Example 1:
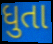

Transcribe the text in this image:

ધુતા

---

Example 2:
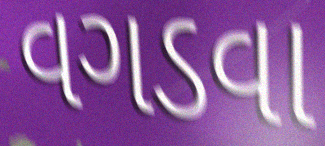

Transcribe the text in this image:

વગડવા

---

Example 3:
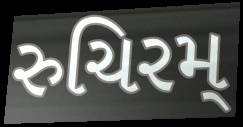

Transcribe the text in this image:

રુચિરમ્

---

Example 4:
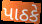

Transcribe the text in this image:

પાઠકે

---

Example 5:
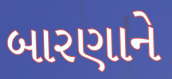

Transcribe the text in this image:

બારણાને